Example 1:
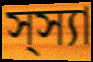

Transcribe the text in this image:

স্স্যা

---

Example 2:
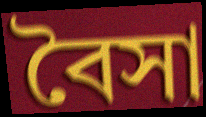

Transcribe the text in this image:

বৈসা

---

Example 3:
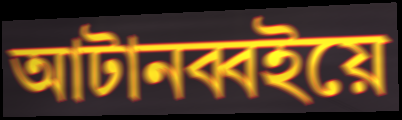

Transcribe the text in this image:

আটানব্বইয়ে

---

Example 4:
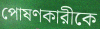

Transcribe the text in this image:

পোষণকারীকে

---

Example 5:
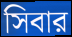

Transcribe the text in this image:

সিবার